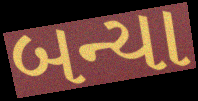
બન્યા